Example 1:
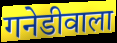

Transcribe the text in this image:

गनेडीवाला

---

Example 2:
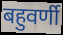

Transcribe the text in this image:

बहुवर्णी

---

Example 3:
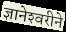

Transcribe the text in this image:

ज्ञानेश्वरीने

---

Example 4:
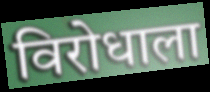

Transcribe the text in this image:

विरोधाला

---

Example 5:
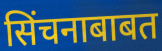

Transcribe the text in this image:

सिंचनाबाबत